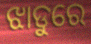
ଝାଡୁରେ